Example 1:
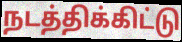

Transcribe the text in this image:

நடத்திக்கிட்டு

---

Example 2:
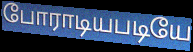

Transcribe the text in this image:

போராடியபடியே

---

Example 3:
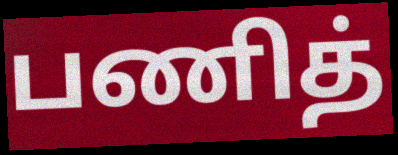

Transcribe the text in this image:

பணித்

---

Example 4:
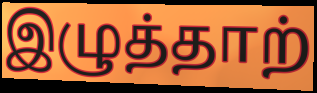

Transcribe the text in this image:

இழுத்தாற்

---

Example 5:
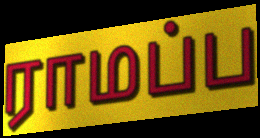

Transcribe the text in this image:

ராமப்ப